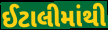
ઈટાલીમાંથી